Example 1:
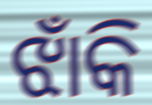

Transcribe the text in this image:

ଝାଁକି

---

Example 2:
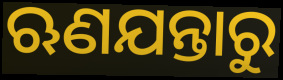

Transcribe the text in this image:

ଋଣଯନ୍ତାରୁ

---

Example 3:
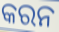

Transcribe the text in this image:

କରନ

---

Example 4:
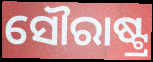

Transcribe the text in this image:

ସୌରାଷ୍ଟ୍ର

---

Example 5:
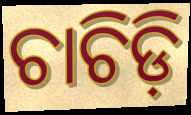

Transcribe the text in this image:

ଚାଚିଡ଼ି